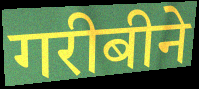
गरीबीने